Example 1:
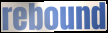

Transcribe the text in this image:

rebound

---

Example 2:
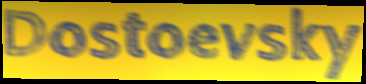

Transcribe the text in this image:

Dostoevsky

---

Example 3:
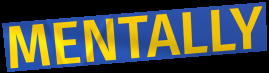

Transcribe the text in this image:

MENTALLY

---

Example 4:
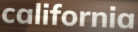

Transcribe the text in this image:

california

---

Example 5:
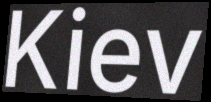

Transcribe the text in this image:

Kiev